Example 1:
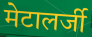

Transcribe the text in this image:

मेटालर्जी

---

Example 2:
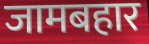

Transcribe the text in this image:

जामबहार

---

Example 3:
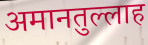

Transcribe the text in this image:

अमानतुल्लाह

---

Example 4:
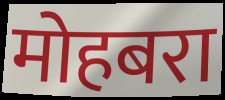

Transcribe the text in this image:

मोहबरा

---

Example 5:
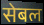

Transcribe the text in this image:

सेबल